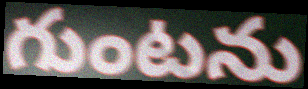
గుంటను